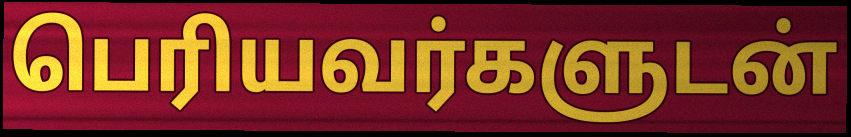
பெரியவர்களுடன்